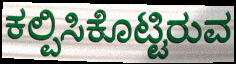
ಕಲ್ಪಿಸಿಕೊಟ್ಟಿರುವ